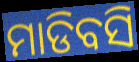
ମାଡିବସି